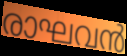
രാഘവൻ